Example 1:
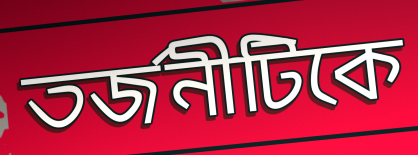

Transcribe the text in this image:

তর্জনীটিকে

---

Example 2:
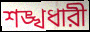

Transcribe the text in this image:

শঙ্খধারী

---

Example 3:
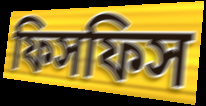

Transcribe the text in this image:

ফিসফিস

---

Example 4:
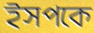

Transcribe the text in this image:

ইসপকে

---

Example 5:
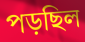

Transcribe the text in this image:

পড়ছিল